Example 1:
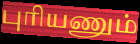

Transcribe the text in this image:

புரியணும்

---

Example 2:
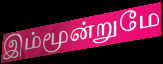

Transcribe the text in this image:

இம்மூன்றுமே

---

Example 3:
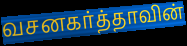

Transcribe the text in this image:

வசனகர்த்தாவின்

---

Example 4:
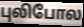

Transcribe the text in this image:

புலிபோல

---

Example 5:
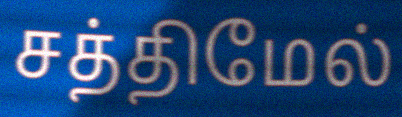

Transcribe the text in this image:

சத்திமேல்